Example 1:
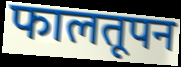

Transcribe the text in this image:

फालतूपन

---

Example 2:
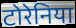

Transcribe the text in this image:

टोरेनिया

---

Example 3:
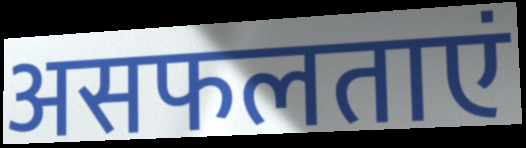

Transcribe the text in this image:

असफलताएं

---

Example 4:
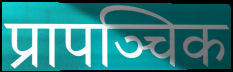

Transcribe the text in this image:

प्रापञ्चिक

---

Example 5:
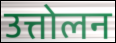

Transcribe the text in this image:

उत्तोलन